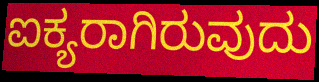
ಐಕ್ಯರಾಗಿರುವುದು